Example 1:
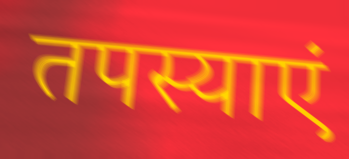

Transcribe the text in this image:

तपस्याएं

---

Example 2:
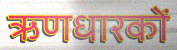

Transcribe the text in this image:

ऋणधारकों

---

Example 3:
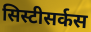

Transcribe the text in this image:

सिस्टीसर्कस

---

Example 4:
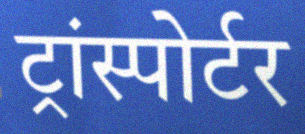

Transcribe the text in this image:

ट्रांस्पोर्टर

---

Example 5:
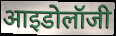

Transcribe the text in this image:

आइडोलॉजी